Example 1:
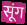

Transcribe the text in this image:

सूंग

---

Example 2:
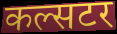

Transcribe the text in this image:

कल्सटर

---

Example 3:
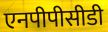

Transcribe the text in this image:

एनपीपीसीडी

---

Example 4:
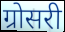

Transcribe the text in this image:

ग्रोसरी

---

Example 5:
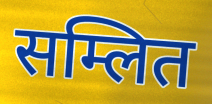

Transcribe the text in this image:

सम्लित